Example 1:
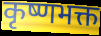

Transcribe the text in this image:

कृष्णभक्त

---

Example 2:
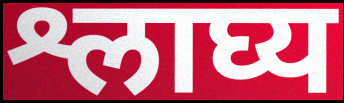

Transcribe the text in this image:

श्लाघ्य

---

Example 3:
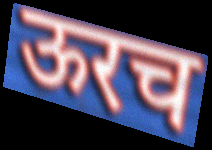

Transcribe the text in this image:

ऊरच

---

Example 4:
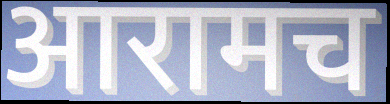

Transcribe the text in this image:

आरामच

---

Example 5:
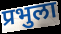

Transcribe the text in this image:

प्रभुला